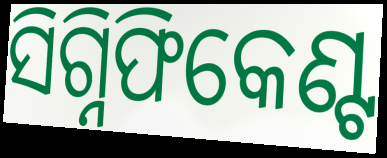
ସିଗ୍ନିଫିକେଣ୍ଟ